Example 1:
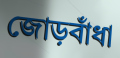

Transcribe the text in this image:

জোড়বাঁধা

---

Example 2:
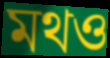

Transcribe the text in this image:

মথও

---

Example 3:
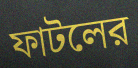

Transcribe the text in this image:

ফাটলের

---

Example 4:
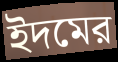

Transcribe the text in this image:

ইদমের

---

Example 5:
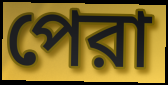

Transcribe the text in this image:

পেরা